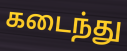
கடைந்து